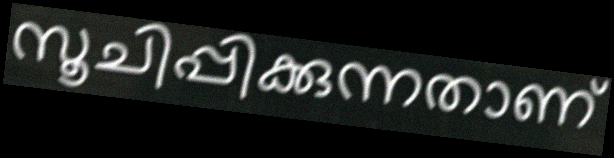
സൂചിപ്പിക്കുന്നതാണ്